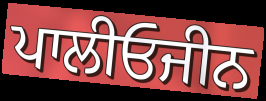
ਪਾਲੀਓਜੀਨ